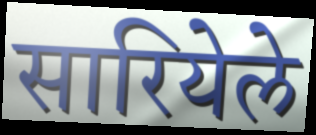
सारियेले